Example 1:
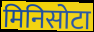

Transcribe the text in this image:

मिनिसोटा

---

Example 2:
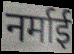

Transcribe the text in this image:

नर्माई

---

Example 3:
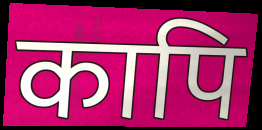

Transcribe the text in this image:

कापि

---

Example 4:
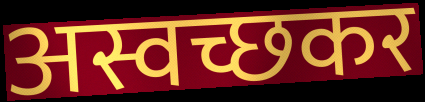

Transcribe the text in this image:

अस्वच्छकर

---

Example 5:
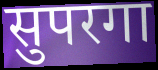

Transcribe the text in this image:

सुपरगा